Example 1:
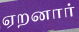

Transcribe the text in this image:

ஏறனார்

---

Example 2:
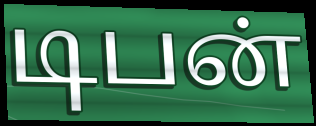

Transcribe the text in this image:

டிபன்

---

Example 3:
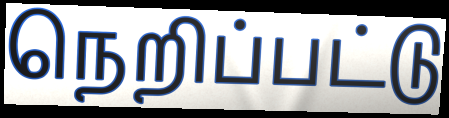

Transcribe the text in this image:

நெறிப்பட்டு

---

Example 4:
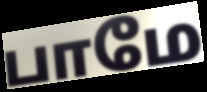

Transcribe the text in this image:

பாமே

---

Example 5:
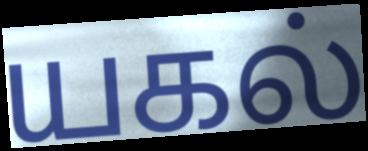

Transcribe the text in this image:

யகல்